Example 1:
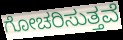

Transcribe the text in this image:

ಗೋಚರಿಸುತ್ತವೆ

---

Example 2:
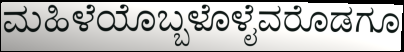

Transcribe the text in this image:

ಮಹಿಳೆಯೊಬ್ಬಳೊಳೈವರೊಡಗೂ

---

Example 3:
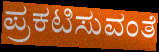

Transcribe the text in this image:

ಪ್ರಕಟಿಸುವಂತೆ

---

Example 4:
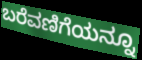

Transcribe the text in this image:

ಬರೆವಣಿಗೆಯನ್ನೂ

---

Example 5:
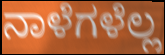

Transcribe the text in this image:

ನಾಳೆಗಳೆಲ್ಲ